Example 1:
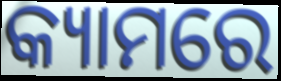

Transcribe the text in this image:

କ୍ୟାମରେ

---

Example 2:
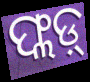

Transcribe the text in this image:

ଫ୍ଲଡ଼୍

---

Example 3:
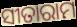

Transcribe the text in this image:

ସୀତାରାମ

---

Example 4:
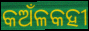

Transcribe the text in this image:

କଅଁଳକହୀ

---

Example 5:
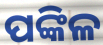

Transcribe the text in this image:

ପଙ୍କିଳ